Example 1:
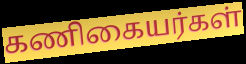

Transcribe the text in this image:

கணிகையர்கள்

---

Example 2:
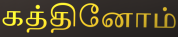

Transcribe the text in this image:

கத்தினோம்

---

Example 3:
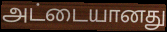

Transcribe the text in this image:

அட்டையானது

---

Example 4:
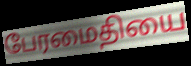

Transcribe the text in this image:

பேரமைதியை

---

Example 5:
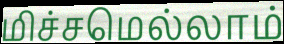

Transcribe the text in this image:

மிச்சமெல்லாம்